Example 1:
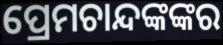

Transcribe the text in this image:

ପ୍ରେମଚାନ୍ଦଙ୍କଙ୍କର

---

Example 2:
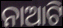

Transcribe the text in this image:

ନାଆଟି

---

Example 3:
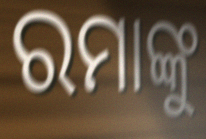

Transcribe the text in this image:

ରମାଙ୍କୁ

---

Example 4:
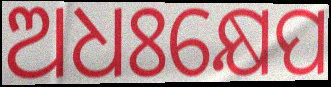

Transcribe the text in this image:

ଅଧଃକ୍ଷେପ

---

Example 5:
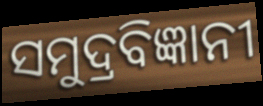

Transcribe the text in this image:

ସମୁଦ୍ରବିଜ୍ଞାନୀ